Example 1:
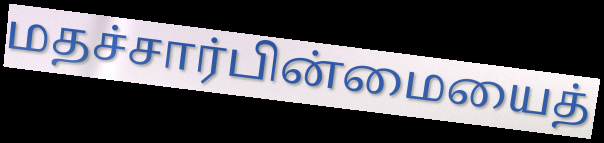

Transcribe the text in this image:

மதச்சார்பின்மையைத்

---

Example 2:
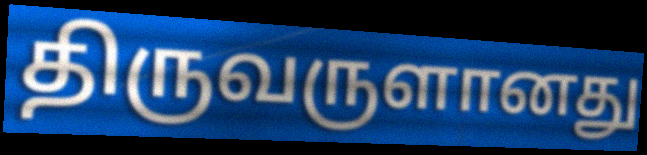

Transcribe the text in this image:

திருவருளானது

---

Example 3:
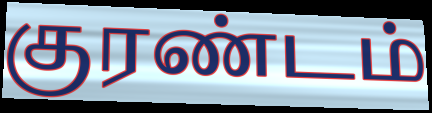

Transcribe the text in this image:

குரண்டம்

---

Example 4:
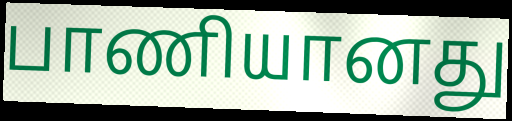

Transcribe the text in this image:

பாணியானது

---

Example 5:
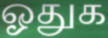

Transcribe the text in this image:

ஓதுக